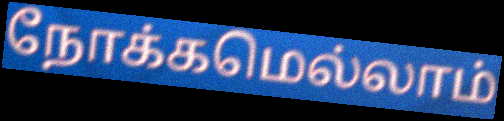
நோக்கமெல்லாம்